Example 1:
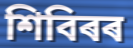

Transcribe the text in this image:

শিবিৰৰ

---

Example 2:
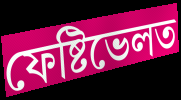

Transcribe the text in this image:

ফেষ্টিভেলত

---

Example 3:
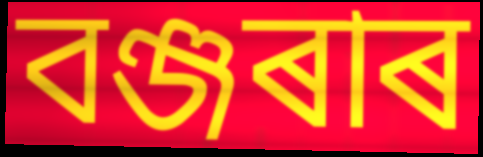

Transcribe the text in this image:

বঞ্জৰাৰ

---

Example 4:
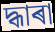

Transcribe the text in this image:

দ্ধাৰা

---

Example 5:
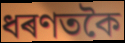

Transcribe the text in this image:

ধৰণতকৈ